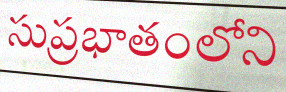
సుప్రభాతంలోని